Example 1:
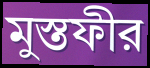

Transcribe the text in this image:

মুস্তফীর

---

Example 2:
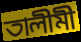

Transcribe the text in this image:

তালীমী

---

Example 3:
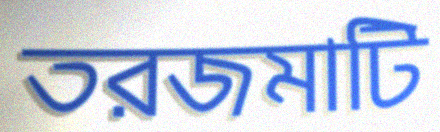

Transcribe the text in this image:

তরজমাটি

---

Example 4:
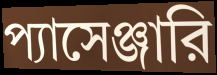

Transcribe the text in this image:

প্যাসেঞ্জারি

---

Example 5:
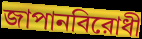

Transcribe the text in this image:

জাপানবিরোধী